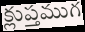
క్లుప్తముగ